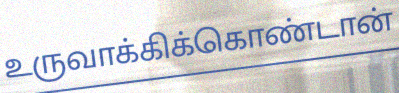
உருவாக்கிக்கொண்டான்